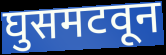
घुसमटवून